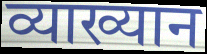
व्याख्यान